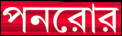
পনরোর